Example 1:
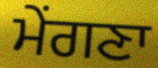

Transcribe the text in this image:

ਮੇਂਗਣਾ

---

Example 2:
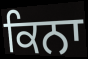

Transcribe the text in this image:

ਕਿਨਾ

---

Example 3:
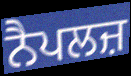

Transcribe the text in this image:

ਨੈਪਲਜ਼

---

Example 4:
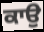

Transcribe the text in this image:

ਕਾਉ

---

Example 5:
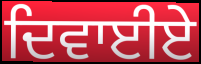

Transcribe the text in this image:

ਦਿਵਾਈਏ